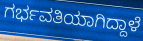
ಗರ್ಭವತಿಯಾಗಿದ್ದಾಳೆ